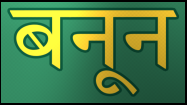
बनून